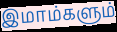
இமாம்களும்